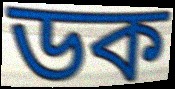
ডক